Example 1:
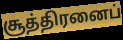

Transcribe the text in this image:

சூத்திரனைப்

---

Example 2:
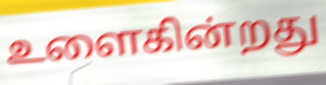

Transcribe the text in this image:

உளைகின்றது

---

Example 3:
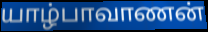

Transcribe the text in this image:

யாழ்பாவாணன்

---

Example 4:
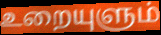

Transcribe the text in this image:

உறையுளும்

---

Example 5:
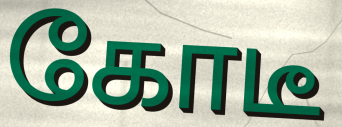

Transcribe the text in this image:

கோடீ